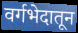
वर्गभेदातून